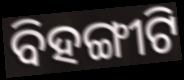
ବିହଙ୍ଗୀଟି